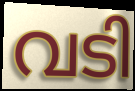
വടി